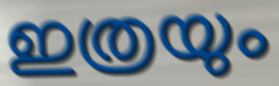
ഇത്രയും